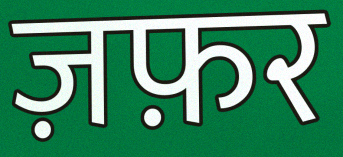
ज़फ़र